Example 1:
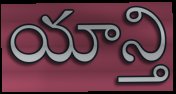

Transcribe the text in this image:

యాన్తి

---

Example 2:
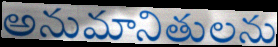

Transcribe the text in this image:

అనుమానితులను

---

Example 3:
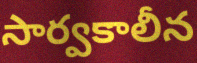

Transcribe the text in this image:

సార్వకాలీన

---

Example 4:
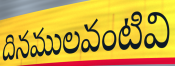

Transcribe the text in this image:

దినములవంటివి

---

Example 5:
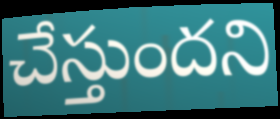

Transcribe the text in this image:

చేస్తుందని